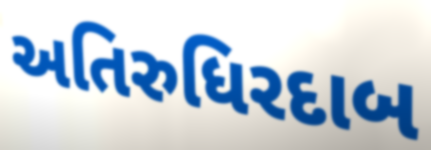
અતિરુધિરદાબ